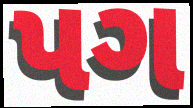
પગ